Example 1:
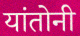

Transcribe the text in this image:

यांतोनी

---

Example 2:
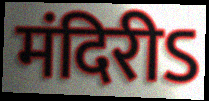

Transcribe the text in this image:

मंदिरीऽ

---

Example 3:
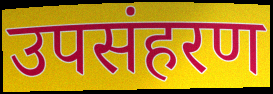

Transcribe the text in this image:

उपसंहरण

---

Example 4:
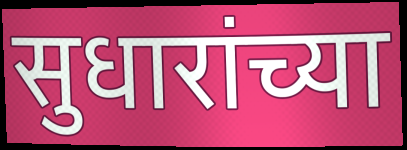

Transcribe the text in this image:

सुधारांच्या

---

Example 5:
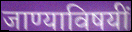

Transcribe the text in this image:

जाण्याविषयीं